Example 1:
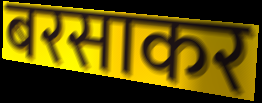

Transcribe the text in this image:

बरसाकर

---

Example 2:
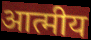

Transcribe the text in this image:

आत्मीय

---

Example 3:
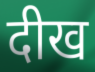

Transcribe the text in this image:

दीख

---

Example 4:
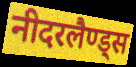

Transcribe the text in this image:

नीदरलैण्ड्स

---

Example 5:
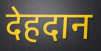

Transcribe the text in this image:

देहदान